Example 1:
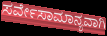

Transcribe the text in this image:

ಸರ್ವೇಸಾಮಾನ್ಯವಾಗಿ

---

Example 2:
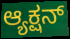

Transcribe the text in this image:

ಆ್ಯಕ್ಷನ್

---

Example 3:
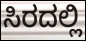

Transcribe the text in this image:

ಸಿರದಲ್ಲಿ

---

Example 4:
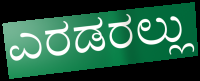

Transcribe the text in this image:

ಎರಡರಲ್ಲು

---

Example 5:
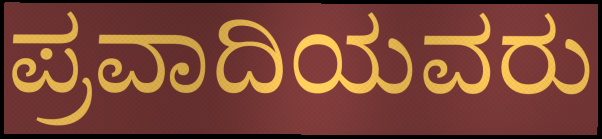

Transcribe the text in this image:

ಪ್ರವಾದಿಯವರು